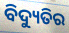
ବିଦ୍ୟୁତିର